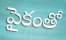
పైకంతో